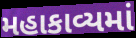
મહાકાવ્યમાં